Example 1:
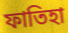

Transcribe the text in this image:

ফাতিহা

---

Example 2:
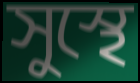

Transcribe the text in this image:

সুস্থে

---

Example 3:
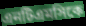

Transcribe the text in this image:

এনটিএমসিকে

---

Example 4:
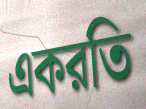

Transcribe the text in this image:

একরতি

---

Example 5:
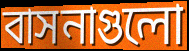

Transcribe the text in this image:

বাসনাগুলো